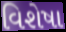
વિશેષા